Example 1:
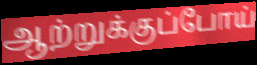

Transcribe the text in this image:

ஆற்றுக்குப்போய்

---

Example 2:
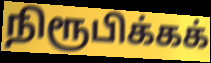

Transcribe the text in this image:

நிரூபிக்கக்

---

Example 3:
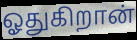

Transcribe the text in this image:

ஓதுகிறான்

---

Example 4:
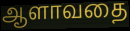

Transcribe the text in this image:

ஆளாவதை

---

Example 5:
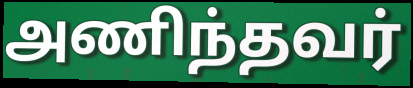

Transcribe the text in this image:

அணிந்தவர்